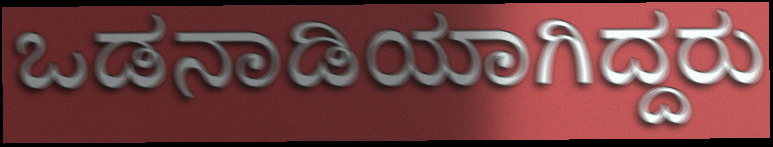
ಒಡನಾಡಿಯಾಗಿದ್ದರು